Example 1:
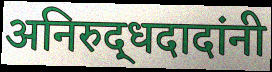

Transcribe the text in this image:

अनिरुद्धदादांनी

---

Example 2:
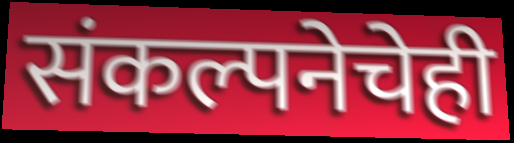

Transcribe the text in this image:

संकल्पनेचेही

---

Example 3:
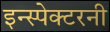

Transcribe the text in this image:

इन्स्पेक्टरनी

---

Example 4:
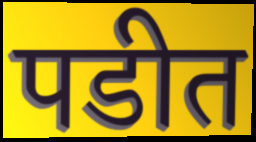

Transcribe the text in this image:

पडीत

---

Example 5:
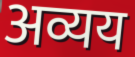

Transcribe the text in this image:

अव्यय